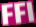
FFI